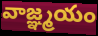
వాజ్ఞ్మయం